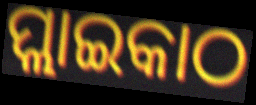
ପ୍ଲାଇକାଠ